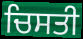
ਚਿਸਤੀ